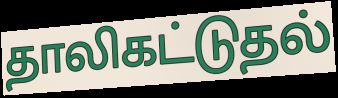
தாலிகட்டுதல்